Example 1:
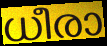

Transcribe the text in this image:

ധീരാ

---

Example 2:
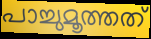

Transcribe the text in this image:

പാച്ചുമൂത്തത്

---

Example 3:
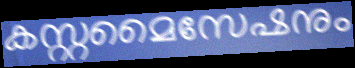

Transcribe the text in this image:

കസ്റ്റമൈസേഷനും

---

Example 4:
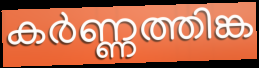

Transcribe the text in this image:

കർണ്ണത്തിങ്ക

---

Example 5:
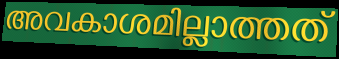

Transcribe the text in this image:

അവകാശമില്ലാത്തത്